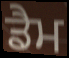
ਡੈਮ